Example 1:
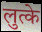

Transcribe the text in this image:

लुत्के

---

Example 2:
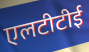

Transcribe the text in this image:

एलटीटीई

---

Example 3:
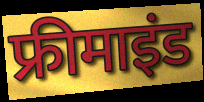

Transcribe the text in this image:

फ्रीमाइंड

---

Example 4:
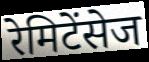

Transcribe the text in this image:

रेमिटेंसेज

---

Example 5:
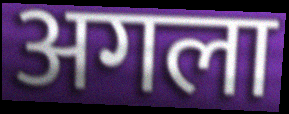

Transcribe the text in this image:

अगला